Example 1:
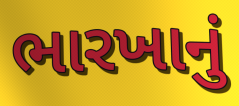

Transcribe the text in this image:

ભારખાનું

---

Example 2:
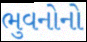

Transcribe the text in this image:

ભુવનોનો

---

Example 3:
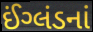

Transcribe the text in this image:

ઈંગ્લંડનાં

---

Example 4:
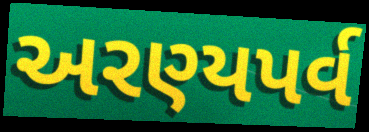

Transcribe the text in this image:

અરણ્યપર્વ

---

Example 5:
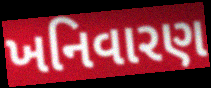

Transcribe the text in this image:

ખનિવારણ